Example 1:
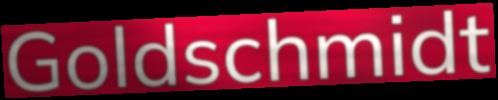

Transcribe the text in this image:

Goldschmidt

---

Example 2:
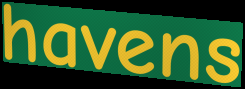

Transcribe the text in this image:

havens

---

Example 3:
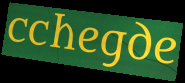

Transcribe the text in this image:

cchegde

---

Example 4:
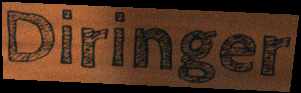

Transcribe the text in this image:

Diringer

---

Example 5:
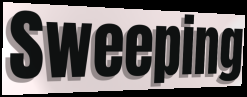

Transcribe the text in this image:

Sweeping